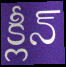
క్లీన్